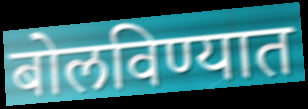
बोलविण्यात